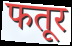
फतूर